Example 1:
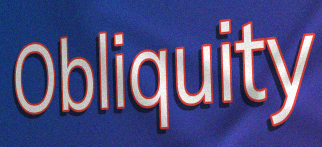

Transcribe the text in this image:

Obliquity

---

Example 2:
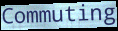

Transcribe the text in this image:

Commuting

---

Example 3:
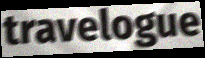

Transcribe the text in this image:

travelogue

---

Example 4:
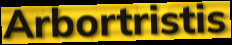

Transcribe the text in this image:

Arbortristis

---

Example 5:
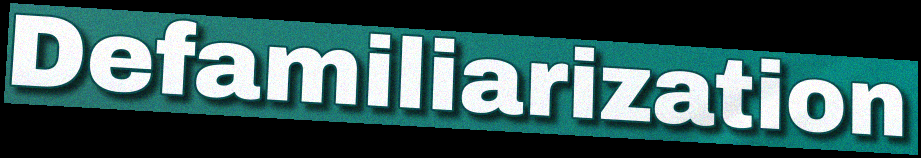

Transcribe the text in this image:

Defamiliarization